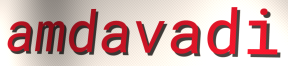
amdavadi